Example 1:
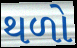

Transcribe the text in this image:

થળો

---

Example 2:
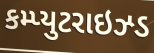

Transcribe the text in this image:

કમ્પ્યુટરાઇઝ્ડ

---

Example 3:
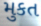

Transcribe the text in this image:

મુકત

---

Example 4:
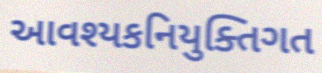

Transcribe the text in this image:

આવશ્યકનિયુક્તિગત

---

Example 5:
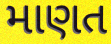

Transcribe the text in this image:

માણત